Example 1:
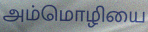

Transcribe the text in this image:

அம்மொழியை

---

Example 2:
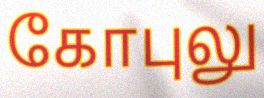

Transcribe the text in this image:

கோபுலு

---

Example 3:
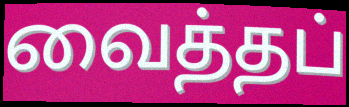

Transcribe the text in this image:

வைத்தப்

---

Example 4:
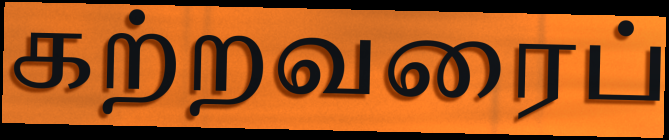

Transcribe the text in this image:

கற்றவரைப்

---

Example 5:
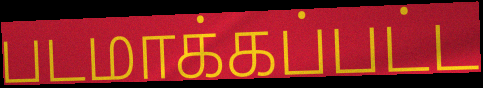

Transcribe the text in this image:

படமாக்கப்பட்ட